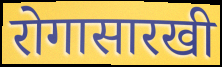
रोगासारखी